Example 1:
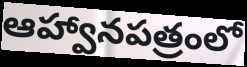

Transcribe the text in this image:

ఆహ్వానపత్రంలో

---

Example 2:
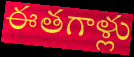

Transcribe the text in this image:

ఈతగాళ్లు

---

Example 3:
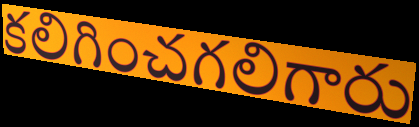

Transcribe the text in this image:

కలిగించగలిగారు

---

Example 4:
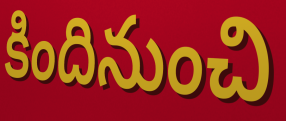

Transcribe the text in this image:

కిందినుంచి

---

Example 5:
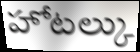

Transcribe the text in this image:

హోటల్కు